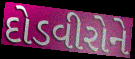
દોડવીરોને